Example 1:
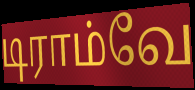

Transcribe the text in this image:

டிராம்வே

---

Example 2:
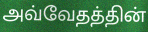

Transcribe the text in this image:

அவ்வேதத்தின்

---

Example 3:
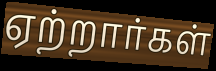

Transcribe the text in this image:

ஏற்றார்கள்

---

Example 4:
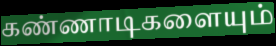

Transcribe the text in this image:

கண்ணாடிகளையும்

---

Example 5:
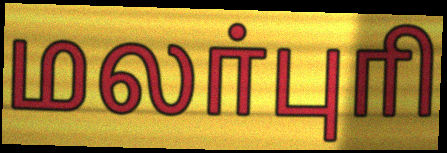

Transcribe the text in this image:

மலர்புரி